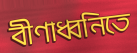
বীণাধ্বনিতে